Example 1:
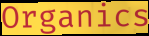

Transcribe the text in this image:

Organics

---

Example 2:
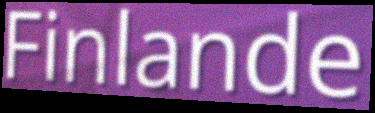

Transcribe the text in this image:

Finlande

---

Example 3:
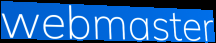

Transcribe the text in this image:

webmaster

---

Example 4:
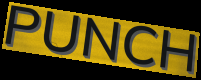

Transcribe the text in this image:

PUNCH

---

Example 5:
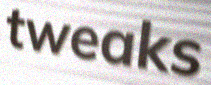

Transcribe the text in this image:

tweaks